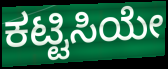
ಕಟ್ಟಿಸಿಯೇ